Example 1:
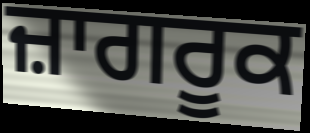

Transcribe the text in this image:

ਜ਼ਾਗਰੂਕ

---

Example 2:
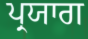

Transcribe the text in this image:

ਪ੍ਰਯਾਗ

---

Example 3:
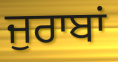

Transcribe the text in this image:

ਜੁਰਾਬਾਂ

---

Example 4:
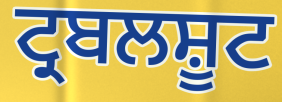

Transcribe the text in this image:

ਟ੍ਰਬਲਸ਼ੂਟ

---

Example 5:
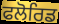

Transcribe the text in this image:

ਫਲੋਰਿਡ